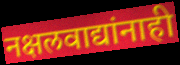
नक्षलवाद्यांनाही